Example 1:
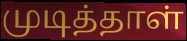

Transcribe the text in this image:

முடித்தாள்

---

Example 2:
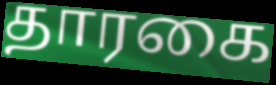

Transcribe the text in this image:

தாரகை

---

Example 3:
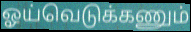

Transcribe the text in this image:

ஓய்வெடுக்கணும்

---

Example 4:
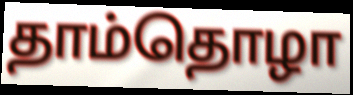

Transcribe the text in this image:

தாம்தொழா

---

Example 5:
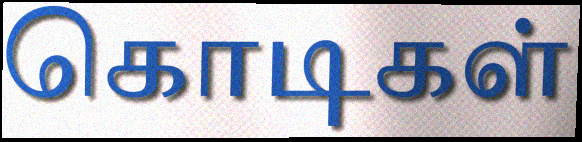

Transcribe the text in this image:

கொடிகள்